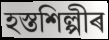
হস্তশিল্পীৰ